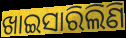
ଖାଇସାରିଲିଣି